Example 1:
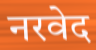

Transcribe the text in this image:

नरवेद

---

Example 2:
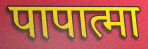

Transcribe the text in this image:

पापात्मा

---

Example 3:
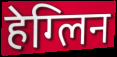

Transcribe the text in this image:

हेग्लिन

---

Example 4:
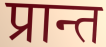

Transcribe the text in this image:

प्रान्त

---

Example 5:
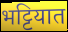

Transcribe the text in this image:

भट्टियात